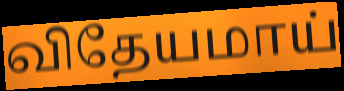
விதேயமாய்